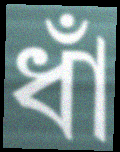
ধাঁ